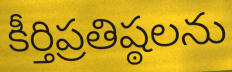
కీర్తిప్రతిష్ఠలను